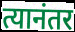
त्यानंतर